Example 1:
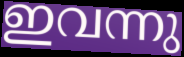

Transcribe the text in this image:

ഇവന്നു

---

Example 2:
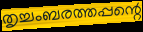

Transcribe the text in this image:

തൃച്ചംബരത്തപ്പന്റെ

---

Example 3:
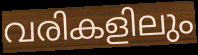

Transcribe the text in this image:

വരികളിലും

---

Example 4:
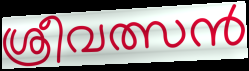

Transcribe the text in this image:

ശ്രീവത്സൻ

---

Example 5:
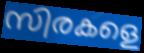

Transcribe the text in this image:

സിരകളെ